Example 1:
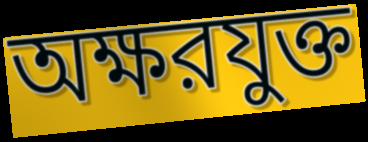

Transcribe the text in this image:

অক্ষরযুক্ত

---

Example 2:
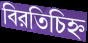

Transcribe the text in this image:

বিরতিচিহ্ন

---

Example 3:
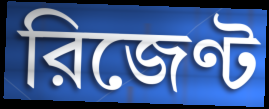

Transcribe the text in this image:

রিজেণ্ট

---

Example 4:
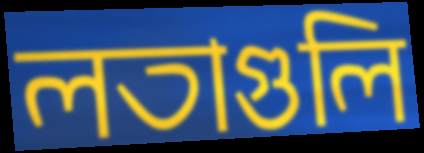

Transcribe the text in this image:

লতাগুলি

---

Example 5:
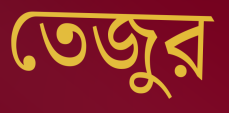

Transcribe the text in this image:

তেজুর